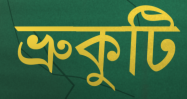
ভ্ৰুকুটি